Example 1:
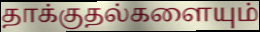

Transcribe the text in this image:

தாக்குதல்களையும்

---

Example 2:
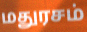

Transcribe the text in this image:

மதுரசம்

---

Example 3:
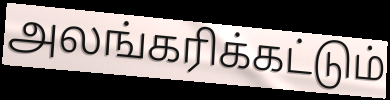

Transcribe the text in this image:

அலங்கரிக்கட்டும்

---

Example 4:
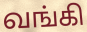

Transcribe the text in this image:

வங்கி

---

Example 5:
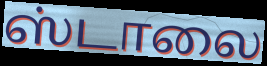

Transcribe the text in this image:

ஸ்டாலை